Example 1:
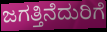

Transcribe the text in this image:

ಜಗತ್ತಿನೆದುರಿಗೆ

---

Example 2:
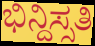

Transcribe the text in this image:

ಭಿನ್ದಿಸ್ಸತಿ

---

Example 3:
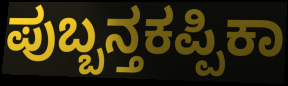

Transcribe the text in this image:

ಪುಬ್ಬನ್ತಕಪ್ಪಿಕಾ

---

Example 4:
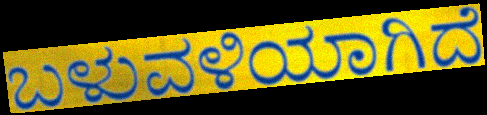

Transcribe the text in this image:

ಬಳುವಳಿಯಾಗಿದೆ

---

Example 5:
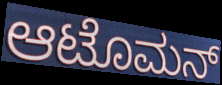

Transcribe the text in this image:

ಆಟೊಮನ್